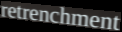
retrenchment